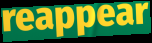
reappear